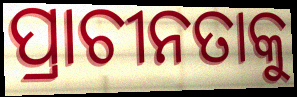
ପ୍ରାଚୀନତାକୁ